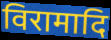
विरामादि